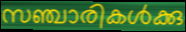
സഞ്ചാരികൾക്കു